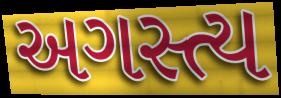
અગસ્ત્ય